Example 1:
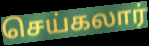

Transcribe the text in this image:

செய்கலார்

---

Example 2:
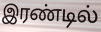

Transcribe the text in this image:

இரண்டில்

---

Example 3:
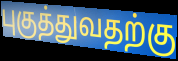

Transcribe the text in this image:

புகுத்துவதற்கு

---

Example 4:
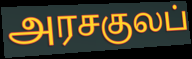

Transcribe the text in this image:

அரசகுலப்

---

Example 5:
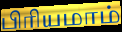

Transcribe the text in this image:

பிரியமாம்